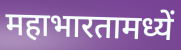
महाभारतामध्यें